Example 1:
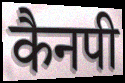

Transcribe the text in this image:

कैनपी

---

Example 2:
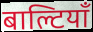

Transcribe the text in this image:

बाल्टियाँ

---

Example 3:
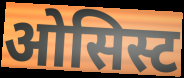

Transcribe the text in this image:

ओसिस्ट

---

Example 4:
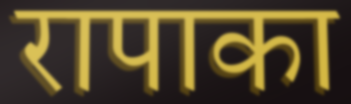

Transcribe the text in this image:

रापाका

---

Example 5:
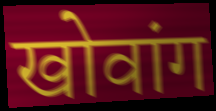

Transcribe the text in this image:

खोवांग